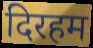
दिरहम